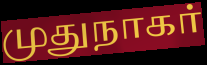
முதுநாகர்